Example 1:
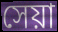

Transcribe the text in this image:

সেয়া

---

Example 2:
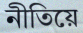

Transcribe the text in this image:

নীতিয়ে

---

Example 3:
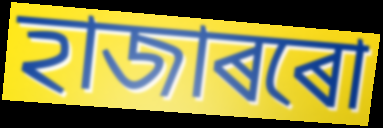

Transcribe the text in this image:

হাজাৰৰো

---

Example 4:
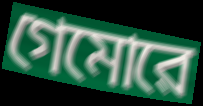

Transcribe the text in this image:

গেমোৱে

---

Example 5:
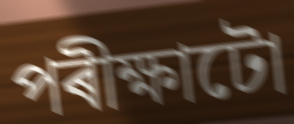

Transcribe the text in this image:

পৰীক্ষাটো